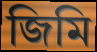
জিমি